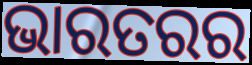
ଭାରତରର